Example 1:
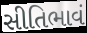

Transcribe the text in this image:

સીતિભાવં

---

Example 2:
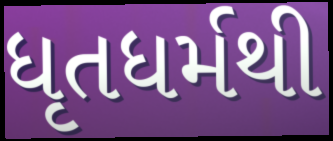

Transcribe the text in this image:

ધૃતધર્મથી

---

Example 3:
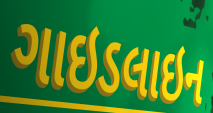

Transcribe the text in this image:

ગાઇડલાઇન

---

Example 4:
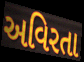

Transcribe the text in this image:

અવિરતા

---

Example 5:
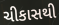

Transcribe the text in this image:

ચીકાસથી